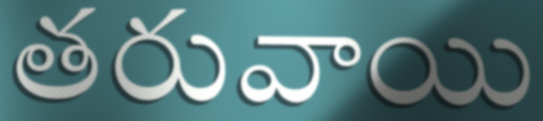
తరువాయి